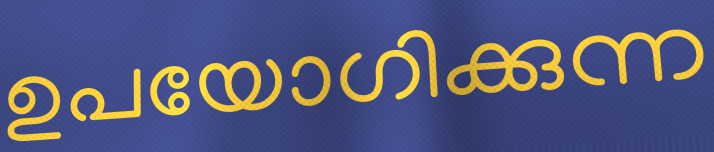
ഉപയോഗിക്കുന്ന